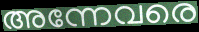
അന്നേവരെ